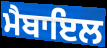
ਮੈਬਾਇਲ